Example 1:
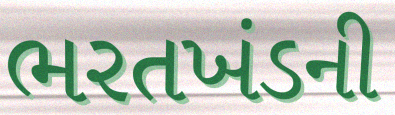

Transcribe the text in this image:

ભરતખંડની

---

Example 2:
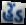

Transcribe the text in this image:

હેંડ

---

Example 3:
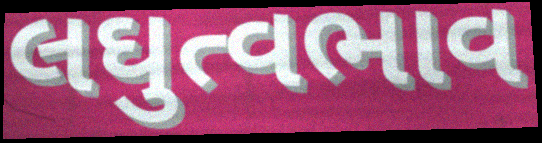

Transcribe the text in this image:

લઘુત્વભાવ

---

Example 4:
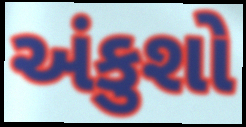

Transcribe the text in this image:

અંકુશો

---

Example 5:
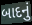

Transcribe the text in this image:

બાદનું